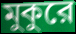
মুকুরে